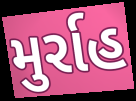
મુર્રાહ